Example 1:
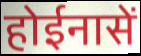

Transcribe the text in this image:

होईनासें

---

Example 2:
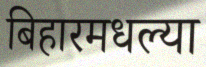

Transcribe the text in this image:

बिहारमधल्या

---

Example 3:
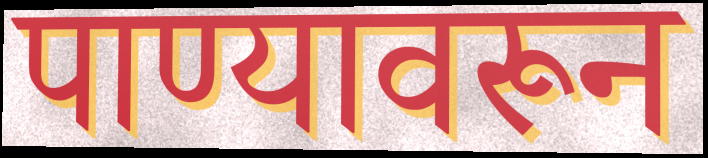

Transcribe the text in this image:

पाण्यावरून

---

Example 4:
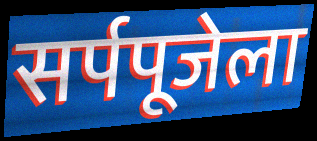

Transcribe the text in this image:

सर्पपूजेला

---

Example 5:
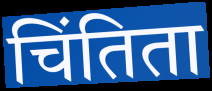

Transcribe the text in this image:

चिंतिता